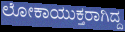
ಲೋಕಾಯುಕ್ತರಾಗಿದ್ದ